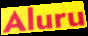
Aluru